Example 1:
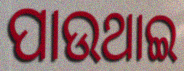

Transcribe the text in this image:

ପାଉଥାଇ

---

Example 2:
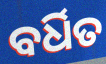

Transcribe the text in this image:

ବର୍ଧିତ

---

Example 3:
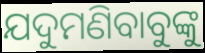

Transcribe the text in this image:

ଯଦୁମଣିବାବୁଙ୍କୁ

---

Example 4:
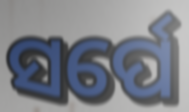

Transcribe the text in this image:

ସର୍ପେ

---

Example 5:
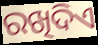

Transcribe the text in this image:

ରଖିଦିଏ